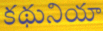
కథునియా